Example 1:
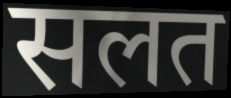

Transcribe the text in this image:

सलत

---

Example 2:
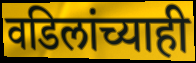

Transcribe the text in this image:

वडिलांच्याही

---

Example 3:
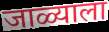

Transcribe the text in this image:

जाळ्याला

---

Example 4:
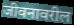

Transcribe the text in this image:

जीवनावरील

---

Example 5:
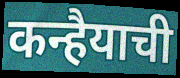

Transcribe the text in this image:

कन्हैयाची